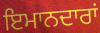
ਇਮਾਨਦਾਰਾਂ